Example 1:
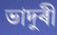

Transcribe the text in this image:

ভাদুৰী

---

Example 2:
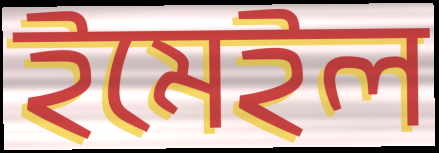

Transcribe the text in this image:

ইমেইল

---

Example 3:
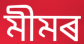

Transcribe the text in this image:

মীমৰ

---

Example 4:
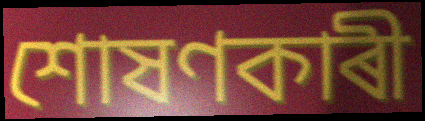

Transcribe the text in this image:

শোষণকাৰী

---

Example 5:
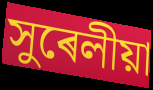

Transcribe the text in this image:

সুৰেলীয়া